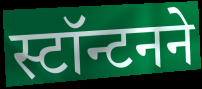
स्टॉन्टनने